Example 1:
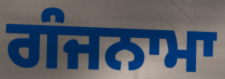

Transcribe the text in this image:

ਗੰਜਨਾਮਾ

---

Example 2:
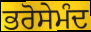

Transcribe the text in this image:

ਭਰੋਸੇਮੰਦ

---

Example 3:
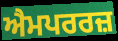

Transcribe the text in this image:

ਐਮਪਰਰਜ਼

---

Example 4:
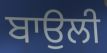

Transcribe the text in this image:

ਬਾਉਲੀ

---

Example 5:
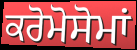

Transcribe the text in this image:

ਕਰੋਮੋਸੋਮਾਂ